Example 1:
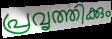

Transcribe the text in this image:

പ്രവൃത്തിക്കും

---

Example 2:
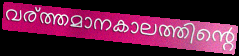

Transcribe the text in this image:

വര്ത്തമാനകാലത്തിന്റെ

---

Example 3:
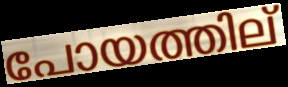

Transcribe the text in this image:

പോയത്തില്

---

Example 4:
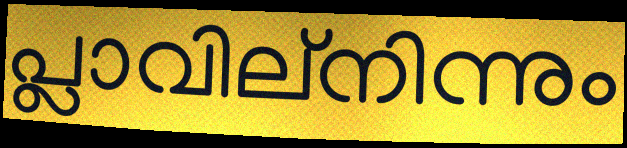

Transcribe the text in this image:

പ്ലാവില്നിന്നും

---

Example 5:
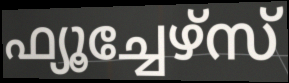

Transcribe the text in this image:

ഫ്യൂച്ചേഴ്സ്